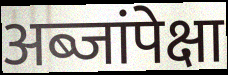
अब्जांपेक्षा